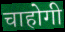
चाहोगी